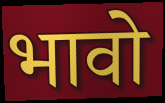
भावो